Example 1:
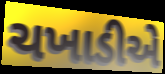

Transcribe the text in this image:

ચખાડીએ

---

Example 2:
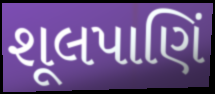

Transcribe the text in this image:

શૂલપાણિં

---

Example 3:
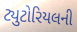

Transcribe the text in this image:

ટ્યુટોરિયલની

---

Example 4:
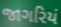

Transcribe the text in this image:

જાગરિયં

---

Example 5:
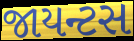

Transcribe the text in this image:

જાયન્ટસ